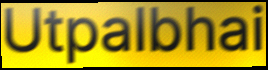
Utpalbhai